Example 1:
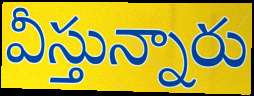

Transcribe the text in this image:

వీస్తున్నారు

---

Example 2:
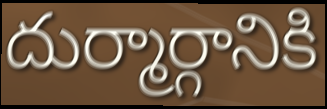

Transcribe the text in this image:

దుర్మార్గానికి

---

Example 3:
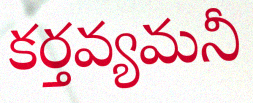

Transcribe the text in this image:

కర్తవ్యమనీ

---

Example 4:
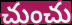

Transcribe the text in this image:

చుంచు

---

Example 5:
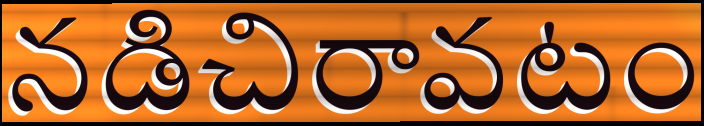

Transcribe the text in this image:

నడిచిరావటం